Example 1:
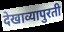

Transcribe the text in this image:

देखाव्यापुरती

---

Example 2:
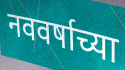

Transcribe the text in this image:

नववर्षाच्या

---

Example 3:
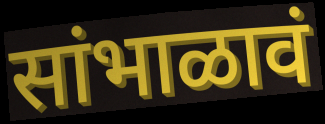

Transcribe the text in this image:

सांभाळावं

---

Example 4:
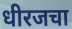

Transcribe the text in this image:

धीरजचा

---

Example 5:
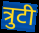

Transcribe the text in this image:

त्रुटी